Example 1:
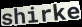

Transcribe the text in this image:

shirke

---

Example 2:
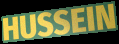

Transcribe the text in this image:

HUSSEIN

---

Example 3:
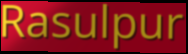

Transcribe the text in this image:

Rasulpur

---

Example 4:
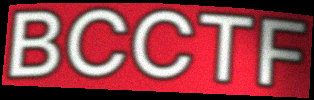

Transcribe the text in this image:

BCCTF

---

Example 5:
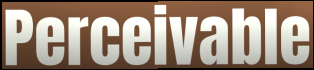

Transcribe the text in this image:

Perceivable